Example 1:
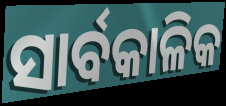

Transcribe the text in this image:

ସାର୍ବକାଳିକ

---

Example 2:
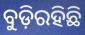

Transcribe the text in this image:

ବୁଡ଼ିରହିଛି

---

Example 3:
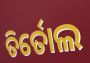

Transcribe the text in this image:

ତିର୍ତୋଲ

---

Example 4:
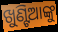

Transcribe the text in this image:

ଖୁଣ୍ଟିଆଙ୍କୁ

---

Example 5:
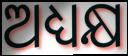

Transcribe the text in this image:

ଅଧ୍ୟକ୍ଷ